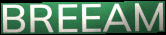
BREEAM